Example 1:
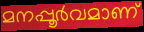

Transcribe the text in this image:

മനപ്പൂർവമാണ്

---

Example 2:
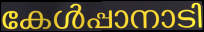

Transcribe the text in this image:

കേൾപ്പാനാടി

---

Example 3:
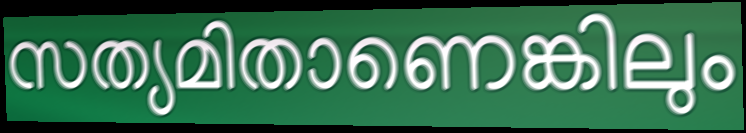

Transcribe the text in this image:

സത്യമിതാണെങ്കിലും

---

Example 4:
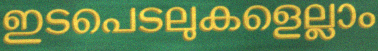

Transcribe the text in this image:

ഇടപെടലുകളെല്ലാം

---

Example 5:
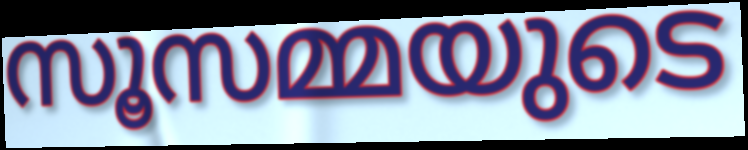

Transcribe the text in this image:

സൂസമ്മയുടെ